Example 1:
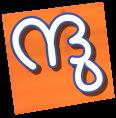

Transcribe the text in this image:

ന്ദു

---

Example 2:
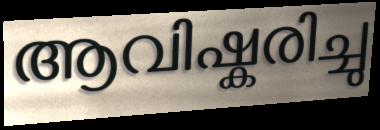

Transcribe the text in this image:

ആവിഷ്കരിച്ചു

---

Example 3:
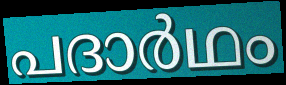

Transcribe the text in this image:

പദാർഥം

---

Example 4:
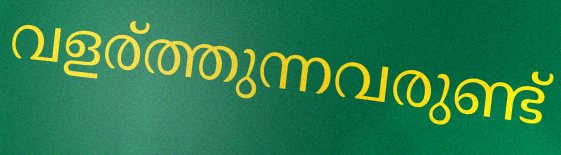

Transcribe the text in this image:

വളര്ത്തുന്നവരുണ്ട്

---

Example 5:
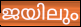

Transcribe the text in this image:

ജയിലും